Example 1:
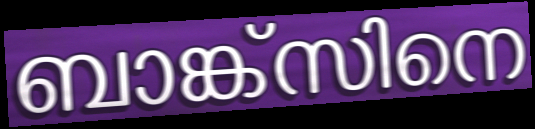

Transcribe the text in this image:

ബാങ്ക്സിനെ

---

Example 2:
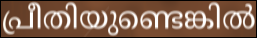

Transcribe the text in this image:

പ്രീതിയുണ്ടെങ്കിൽ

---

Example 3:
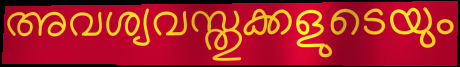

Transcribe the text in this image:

അവശ്യവസ്തുക്കളുടെയും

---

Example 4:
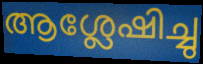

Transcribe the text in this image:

ആശ്ലേഷിച്ചു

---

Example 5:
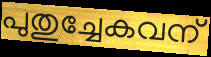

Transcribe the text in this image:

പുതുച്ചേകവന്